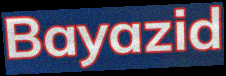
Bayazid